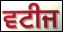
ਵਟੀਜ